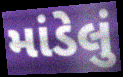
માંડેલું